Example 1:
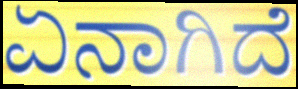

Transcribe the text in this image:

ಏನಾಗಿದೆ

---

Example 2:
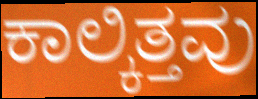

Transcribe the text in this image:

ಕಾಲ್ಕಿತ್ತವು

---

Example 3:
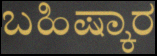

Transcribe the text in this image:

ಬಹಿಷ್ಕಾರ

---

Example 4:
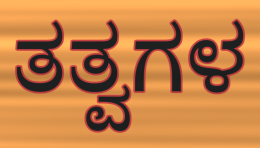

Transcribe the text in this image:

ತತ್ವಗಳ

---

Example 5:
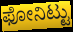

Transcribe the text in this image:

ಫೋನಿಟ್ಟು